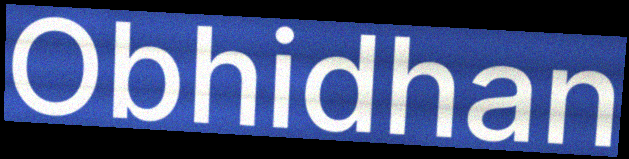
Obhidhan